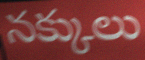
నక్కులు